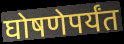
घोषणेपर्यंत